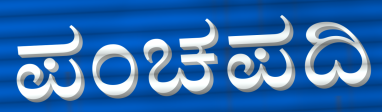
ಪಂಚಪದಿ